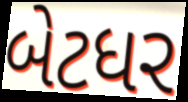
બેટધર